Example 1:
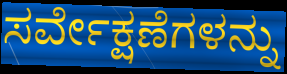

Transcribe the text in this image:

ಸರ್ವೇಕ್ಷಣೆಗಳನ್ನು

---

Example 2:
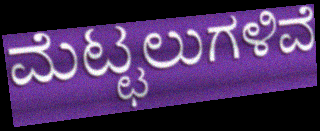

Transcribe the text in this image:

ಮೆಟ್ಟಲುಗಳಿವೆ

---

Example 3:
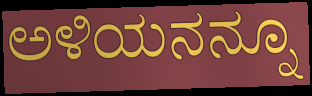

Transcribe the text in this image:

ಅಳಿಯನನ್ನೂ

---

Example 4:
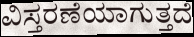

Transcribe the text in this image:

ವಿಸ್ತರಣೆಯಾಗುತ್ತದೆ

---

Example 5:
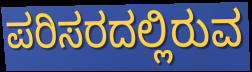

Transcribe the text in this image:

ಪರಿಸರದಲ್ಲಿರುವ